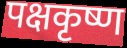
पक्षकृष्ण